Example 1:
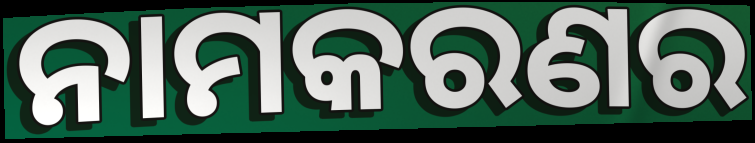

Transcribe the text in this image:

ନାମକରଣର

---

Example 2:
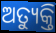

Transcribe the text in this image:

ଅତ୍ୟୁକ୍ତି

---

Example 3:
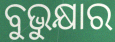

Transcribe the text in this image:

ବୁଭୁକ୍ଷାର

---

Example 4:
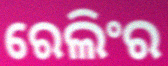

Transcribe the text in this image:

ରେଲିଂର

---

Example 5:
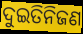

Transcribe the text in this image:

ଦୁଇତିନିଜଣ